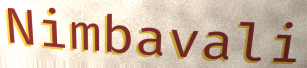
Nimbavali